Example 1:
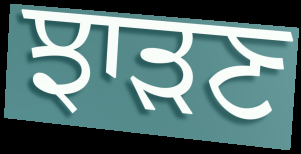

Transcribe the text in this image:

ਝਾੜਣ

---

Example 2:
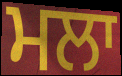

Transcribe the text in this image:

ਮਲਾ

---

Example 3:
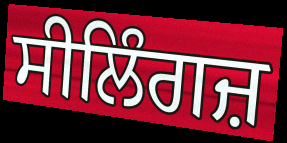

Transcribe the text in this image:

ਸੀਲਿੰਗਜ਼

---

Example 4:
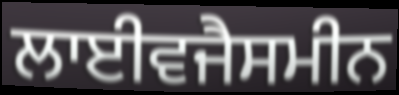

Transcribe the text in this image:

ਲਾਈਵਜੈਸਮੀਨ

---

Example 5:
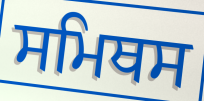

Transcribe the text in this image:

ਸਮਿਥਸ